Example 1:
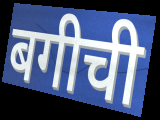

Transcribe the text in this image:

बगीची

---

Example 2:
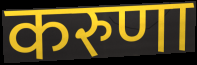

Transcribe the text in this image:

करुणा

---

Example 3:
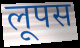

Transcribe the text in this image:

लूपस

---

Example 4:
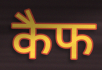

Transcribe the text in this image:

कैफ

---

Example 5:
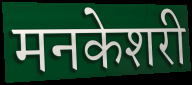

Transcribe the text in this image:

मनकेशरी